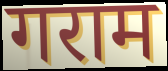
गराम